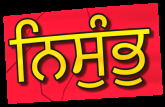
ਨਿਸੁੰਭੁ